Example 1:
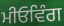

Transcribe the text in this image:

ਮੀਓਵਿੰਗ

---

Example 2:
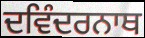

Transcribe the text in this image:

ਦਵਿੰਦਰਨਾਥ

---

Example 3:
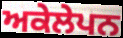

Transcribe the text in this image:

ਅਕੇਲੇਪਨ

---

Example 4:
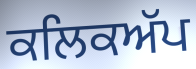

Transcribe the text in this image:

ਕਲਿਕਅੱਪ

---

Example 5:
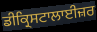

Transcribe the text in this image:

ਡੀਕ੍ਰਿਸਟਾਲਾਈਜ਼ਰ